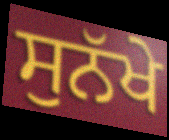
ਸੁਨੱਖੇ